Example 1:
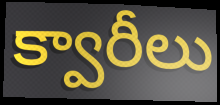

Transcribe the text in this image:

క్వారీలు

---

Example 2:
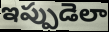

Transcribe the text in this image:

ఇప్పుడెలా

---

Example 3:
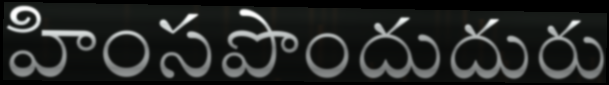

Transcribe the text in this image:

హింసపొందుదురు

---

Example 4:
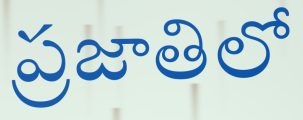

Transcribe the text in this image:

ప్రజాతిలో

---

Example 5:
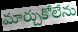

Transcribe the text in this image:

మార్చుకోలేను